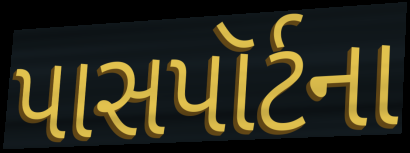
પાસપૉર્ટના